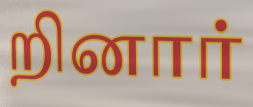
றினார்